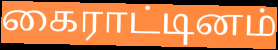
கைராட்டினம்